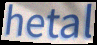
hetal